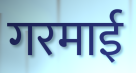
गरमाई